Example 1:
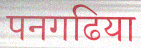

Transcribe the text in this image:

पनगढिया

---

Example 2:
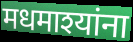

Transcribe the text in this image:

मधमाश्यांना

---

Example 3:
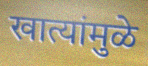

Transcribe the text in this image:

खात्यांमुळे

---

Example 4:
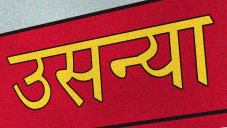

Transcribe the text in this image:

उसन्या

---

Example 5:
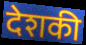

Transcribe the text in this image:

देशकी